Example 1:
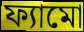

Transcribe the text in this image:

ফ্যামো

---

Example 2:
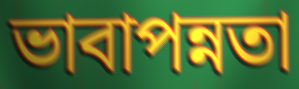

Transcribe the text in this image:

ভাবাপন্নতা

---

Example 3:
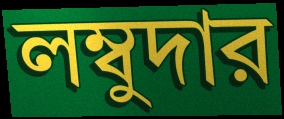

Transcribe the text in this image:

লম্বুদার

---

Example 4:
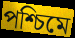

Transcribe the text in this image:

পশ্চিমে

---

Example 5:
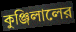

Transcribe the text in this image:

কুঞ্জিলালের